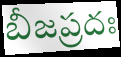
బీజప్రదః